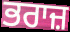
ਭਰਾਜ਼